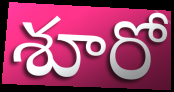
శూరో